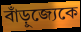
বাঁড়ুজ্যেকে